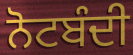
ਨੋਟਬੰਦੀ